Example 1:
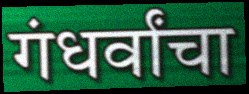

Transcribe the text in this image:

गंधर्वांचा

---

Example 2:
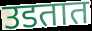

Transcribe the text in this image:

उडतात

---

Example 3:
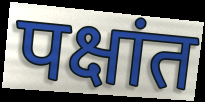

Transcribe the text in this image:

पक्षांत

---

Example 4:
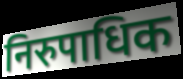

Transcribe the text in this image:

निरुपाधिक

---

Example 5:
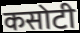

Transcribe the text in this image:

कसोटी